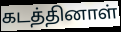
கடத்தினாள்